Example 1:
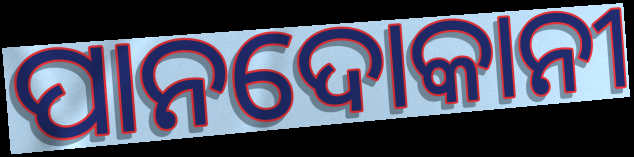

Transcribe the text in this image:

ପାନଦୋକାନୀ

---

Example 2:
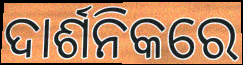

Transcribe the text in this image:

ଦାର୍ଶନିକରେ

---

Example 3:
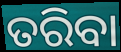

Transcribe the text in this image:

ତରିବା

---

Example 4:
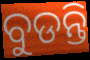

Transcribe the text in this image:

ବୁଡନ୍ତି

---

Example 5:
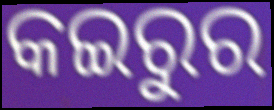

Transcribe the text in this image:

କଇରୁର